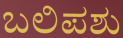
ಬಲಿಪಶು